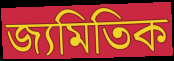
জ্যমিতিক